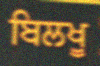
ਬਿਲਖੂ